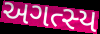
અગત્સ્ય